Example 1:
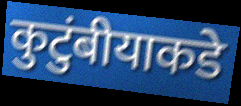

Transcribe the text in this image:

कुटुंबीयाकडे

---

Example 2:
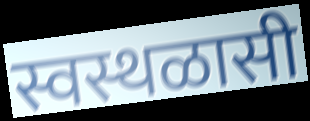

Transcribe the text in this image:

स्वस्थळासी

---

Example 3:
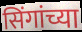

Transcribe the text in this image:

सिंगांच्या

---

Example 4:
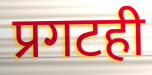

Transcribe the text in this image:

प्रगटही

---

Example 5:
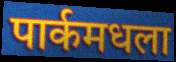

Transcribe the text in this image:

पार्कमधला